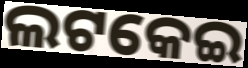
ଲଟକେଇ